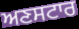
ਅਣਸਟਾਰ